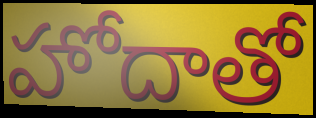
హోదాతో